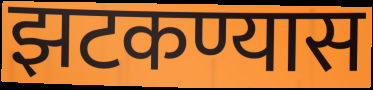
झटकण्यास